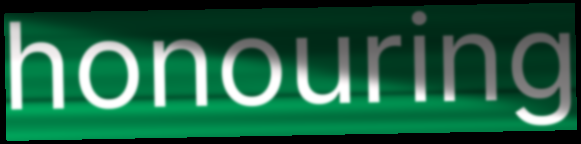
honouring